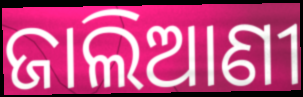
ଜାଲିଆଣୀ